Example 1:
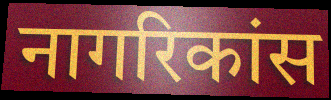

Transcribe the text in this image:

नागरिकांस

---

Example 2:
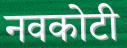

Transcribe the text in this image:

नवकोटी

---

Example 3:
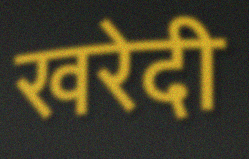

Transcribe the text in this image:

खरेदी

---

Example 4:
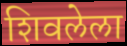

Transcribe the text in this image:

शिवलेला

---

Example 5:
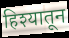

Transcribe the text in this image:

हिश्यातून